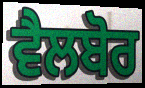
ਵੈਲਬੋਰ